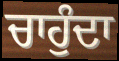
ਚਾਹੁੰਦਾ